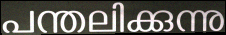
പന്തലിക്കുന്നു